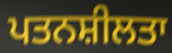
ਪਤਨਸ਼ੀਲਤਾ